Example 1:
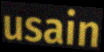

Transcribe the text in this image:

usain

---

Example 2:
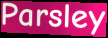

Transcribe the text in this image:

Parsley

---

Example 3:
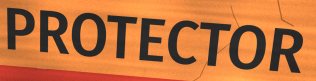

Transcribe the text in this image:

PROTECTOR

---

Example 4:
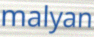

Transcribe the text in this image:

malyan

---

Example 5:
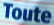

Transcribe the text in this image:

Toute